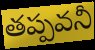
తప్పవనీ